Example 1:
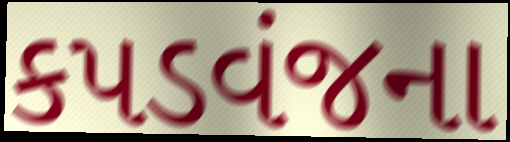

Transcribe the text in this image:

કપડવંજના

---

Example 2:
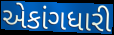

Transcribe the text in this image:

એકાંગધારી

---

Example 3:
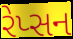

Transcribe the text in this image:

રેપ્સન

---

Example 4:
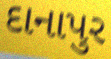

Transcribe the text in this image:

દાનાપુર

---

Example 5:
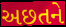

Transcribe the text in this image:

અછતને